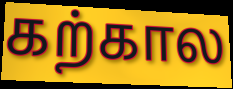
கற்கால